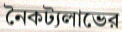
নৈকট্যলাভের